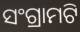
ସଂଗ୍ରାମଟି